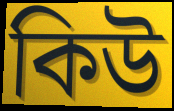
কিউ